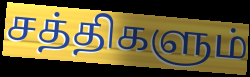
சத்திகளும்